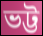
ভট্ট